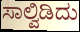
ಸಾಲ್ವಿಡಿದು